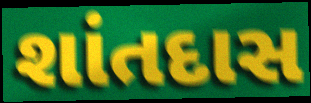
શાંતદાસ